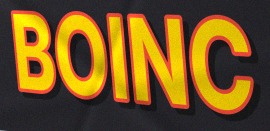
BOINC